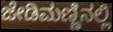
ಜೇಡಿಮಣ್ಣಿನಲ್ಲಿ